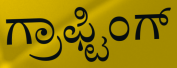
ಗ್ರಾಫ್ಟಿಂಗ್